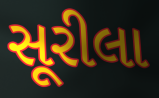
સૂરીલા